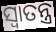
ସ୍ୱାତନ୍ତ୍ର